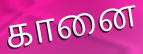
கானை